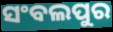
ସଂବଲପୁର